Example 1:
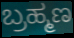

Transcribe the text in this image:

ಬ್ರಹ್ಮಣ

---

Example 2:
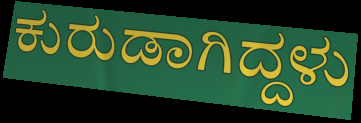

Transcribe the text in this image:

ಕುರುಡಾಗಿದ್ದಳು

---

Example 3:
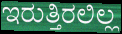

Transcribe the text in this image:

ಇರುತ್ತಿರಲಿಲ್ಲ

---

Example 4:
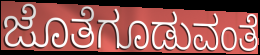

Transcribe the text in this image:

ಜೊತೆಗೂಡುವಂತೆ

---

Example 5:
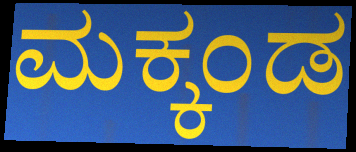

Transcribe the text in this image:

ಮಕ್ಕಂಡ